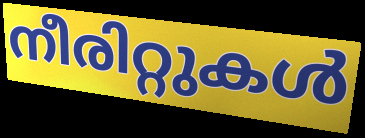
നീരിറ്റുകൾ